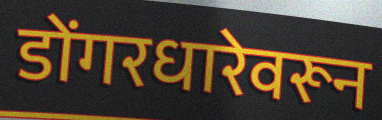
डोंगरधारेवरून